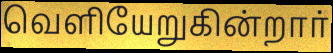
வெளியேறுகின்றார்